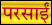
परसाईं